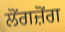
ਲੋਂਗਜ਼ੋਂਗ